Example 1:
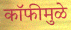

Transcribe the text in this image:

कॉफीमुळे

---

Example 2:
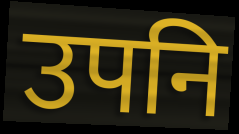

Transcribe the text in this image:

उपनि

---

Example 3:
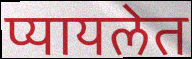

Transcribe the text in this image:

प्यायलेत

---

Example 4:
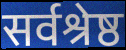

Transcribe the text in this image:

सर्वश्रेष्ठ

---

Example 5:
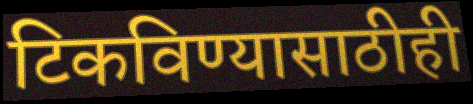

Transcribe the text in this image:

टिकविण्यासाठीही